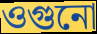
ওগুনো